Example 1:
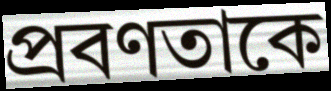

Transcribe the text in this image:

প্রবণতাকে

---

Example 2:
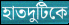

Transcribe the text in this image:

হাতদুটিকে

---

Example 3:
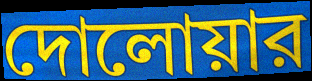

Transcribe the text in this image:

দোলোয়ার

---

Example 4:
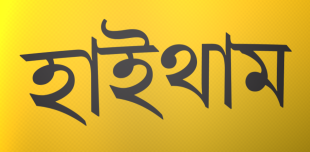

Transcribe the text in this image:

হাইথাম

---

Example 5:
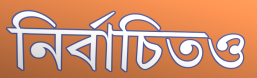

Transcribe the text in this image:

নির্বাচিতও